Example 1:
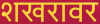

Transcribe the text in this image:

शखरावर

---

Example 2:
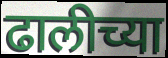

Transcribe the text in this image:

ढालीच्या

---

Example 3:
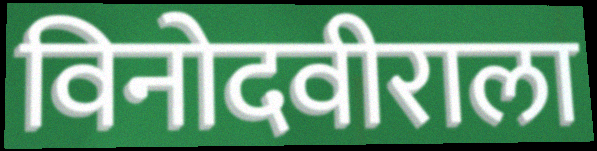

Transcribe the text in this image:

विनोदवीराला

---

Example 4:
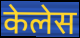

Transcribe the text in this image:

केलेस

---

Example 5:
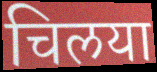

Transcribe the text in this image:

चिलया